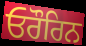
ਓਰੌਰਿਨ